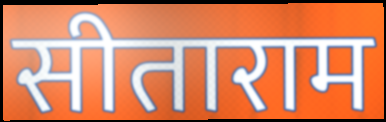
सीताराम